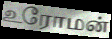
உரோமன்